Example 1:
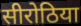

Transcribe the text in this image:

सीरोठिया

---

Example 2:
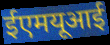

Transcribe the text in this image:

ईएमयूआई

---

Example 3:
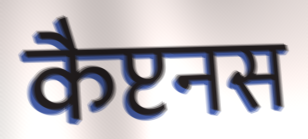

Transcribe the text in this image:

कैप्टनस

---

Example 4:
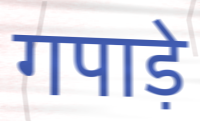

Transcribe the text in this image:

गपाड़े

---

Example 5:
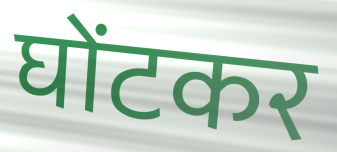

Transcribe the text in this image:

घोंटकर